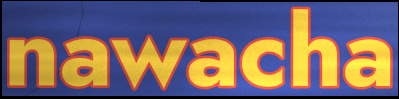
nawacha